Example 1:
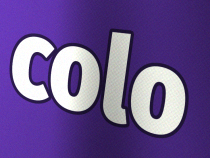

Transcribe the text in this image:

colo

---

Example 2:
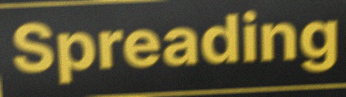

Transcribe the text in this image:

Spreading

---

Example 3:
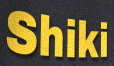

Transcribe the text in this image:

Shiki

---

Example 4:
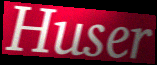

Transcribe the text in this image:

Huser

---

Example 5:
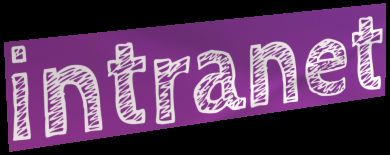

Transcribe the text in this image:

intranet